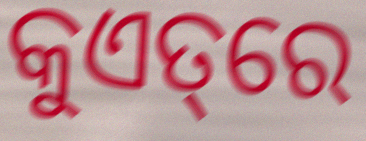
କୁଏତ୍‌ରେ